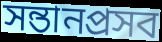
সন্তানপ্রসব